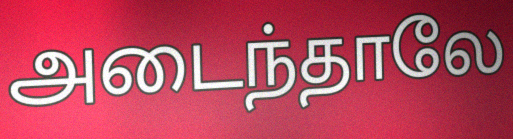
அடைந்தாலே